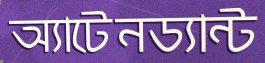
অ্যাটেনড্যান্ট